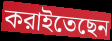
করাইতেছেন